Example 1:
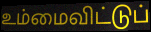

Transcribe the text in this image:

உம்மைவிட்டுப்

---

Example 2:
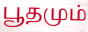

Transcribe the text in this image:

பூதமும்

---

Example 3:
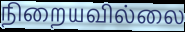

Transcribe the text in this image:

நிறையவில்லை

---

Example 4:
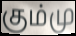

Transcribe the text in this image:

கும்மு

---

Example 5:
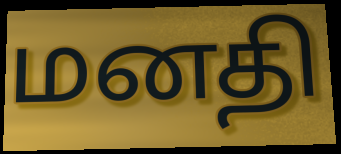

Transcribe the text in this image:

மனதி